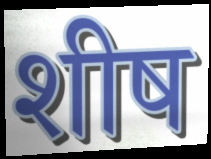
शीष